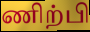
ணிற்பி